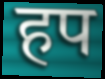
हप